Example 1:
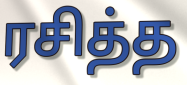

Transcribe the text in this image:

ரசித்த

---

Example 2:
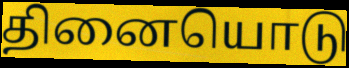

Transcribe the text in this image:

தினையொடு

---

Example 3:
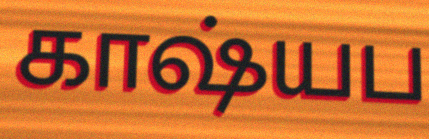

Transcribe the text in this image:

காஷ்யப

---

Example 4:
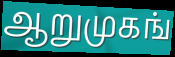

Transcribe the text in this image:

ஆறுமுகங்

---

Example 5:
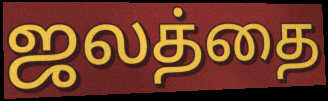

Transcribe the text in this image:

ஜலத்தை